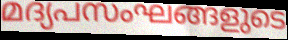
മദ്യപസംഘങ്ങളുടെ